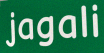
jagali